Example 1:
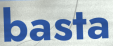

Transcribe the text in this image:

basta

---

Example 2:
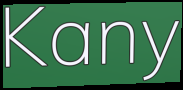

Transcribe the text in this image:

Kany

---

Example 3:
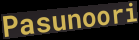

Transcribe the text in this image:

Pasunoori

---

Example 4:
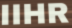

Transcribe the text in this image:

IIHR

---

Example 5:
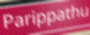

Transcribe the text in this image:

Parippathu